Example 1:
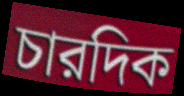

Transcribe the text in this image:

চারদিক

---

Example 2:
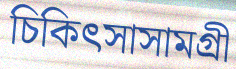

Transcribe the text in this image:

চিকিৎসাসামগ্রী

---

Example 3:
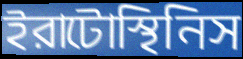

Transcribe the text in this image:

ইরাটোস্থিনিস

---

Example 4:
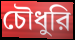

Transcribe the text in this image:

চৌধুরি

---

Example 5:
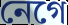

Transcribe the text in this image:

নেগে